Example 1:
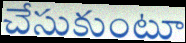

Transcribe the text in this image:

చేసుకుంటూ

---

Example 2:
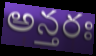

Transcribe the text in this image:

అన్తరః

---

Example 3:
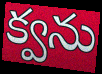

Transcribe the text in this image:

క్వను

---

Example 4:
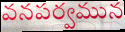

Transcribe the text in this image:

వనపర్వమున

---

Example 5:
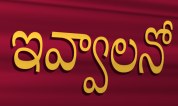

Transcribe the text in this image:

ఇవ్వాలనో